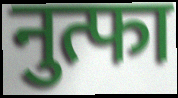
नुत्फा